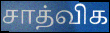
சாத்விக